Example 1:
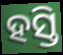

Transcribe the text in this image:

ହସ୍ତି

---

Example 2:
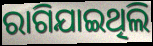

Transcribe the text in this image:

ରାଗିଯାଇଥିଲି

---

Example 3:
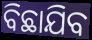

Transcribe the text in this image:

ବିଛାଯିବ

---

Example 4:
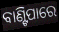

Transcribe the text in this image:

ବାଣ୍ଟିପାରେ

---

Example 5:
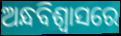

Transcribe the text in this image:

ଅନ୍ଧବିଶ୍ବାସରେ